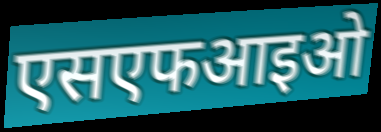
एसएफआइओ